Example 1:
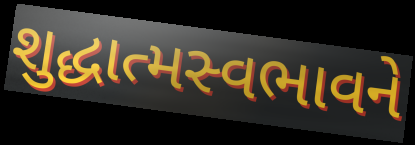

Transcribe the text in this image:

શુદ્ધાત્મસ્વભાવને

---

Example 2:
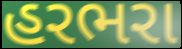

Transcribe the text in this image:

હરભરા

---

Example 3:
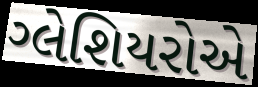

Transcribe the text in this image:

ગ્લેશિયરોએ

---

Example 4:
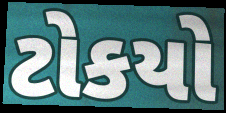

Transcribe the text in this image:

ટોકયો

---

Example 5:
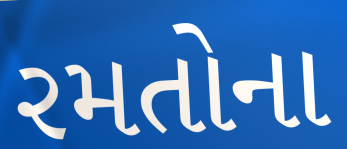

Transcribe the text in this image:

રમતોના